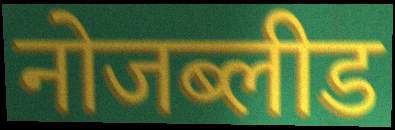
नोजब्लीड